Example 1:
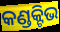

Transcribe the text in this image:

କଣ୍ଡକ୍ଟିଭ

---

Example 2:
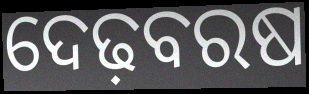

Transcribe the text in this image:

ଦେଢ଼ବରଷ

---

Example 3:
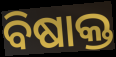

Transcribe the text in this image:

ବିଷାକ୍ତ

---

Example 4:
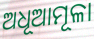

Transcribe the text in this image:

ଅଧୂଆମୂଳା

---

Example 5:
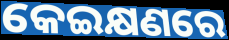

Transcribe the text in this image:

କେଇକ୍ଷଣରେ